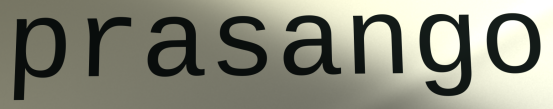
prasango